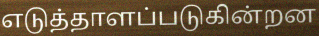
எடுத்தாளப்படுகின்றன